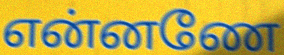
என்னணே